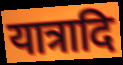
यात्रादि